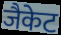
जैकेट